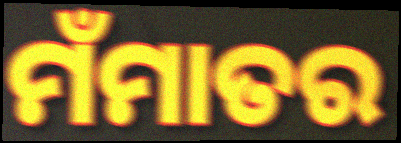
ମଁମାତର